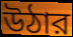
উঠার